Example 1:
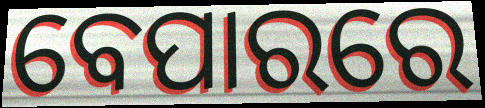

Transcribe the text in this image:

ବେପାରରେ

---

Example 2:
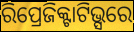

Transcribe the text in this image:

ରିପ୍ରେଜିକ୍ଟାଟିଭ୍ସରେ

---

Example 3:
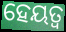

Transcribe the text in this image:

ହେୟତ୍ୱ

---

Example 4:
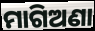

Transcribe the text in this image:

ମାଗିଅଣା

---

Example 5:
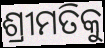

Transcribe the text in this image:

ଶ୍ରୀମତିକୁ